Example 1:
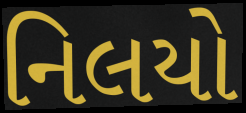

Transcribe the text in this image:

નિલયો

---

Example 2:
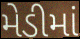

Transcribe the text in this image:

મેડીમાં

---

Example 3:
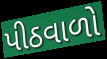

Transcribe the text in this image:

પીઠવાળો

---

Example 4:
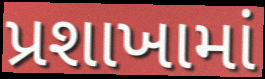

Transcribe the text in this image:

પ્રશાખામાં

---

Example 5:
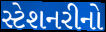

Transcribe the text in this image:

સ્ટેશનરીનો